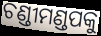
ଚଣ୍ଡୀମଣ୍ଡପକୁ